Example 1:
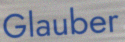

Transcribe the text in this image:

Glauber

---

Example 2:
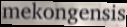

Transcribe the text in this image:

mekongensis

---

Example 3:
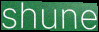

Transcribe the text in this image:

shune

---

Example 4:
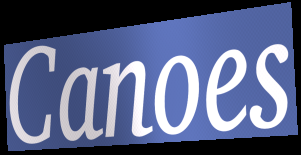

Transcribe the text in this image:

Canoes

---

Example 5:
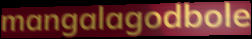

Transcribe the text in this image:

mangalagodbole